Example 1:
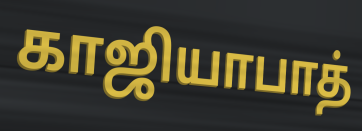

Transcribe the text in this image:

காஜியாபாத்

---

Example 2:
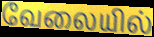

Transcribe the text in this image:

வேலையில்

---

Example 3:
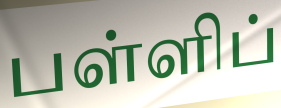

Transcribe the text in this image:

பள்ளிப்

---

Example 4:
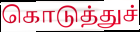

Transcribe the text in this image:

கொடுத்துச்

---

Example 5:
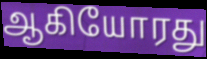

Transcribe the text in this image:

ஆகியோரது